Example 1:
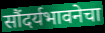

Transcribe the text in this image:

सौंदर्यभावनेचा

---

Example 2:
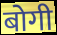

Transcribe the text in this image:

बोगी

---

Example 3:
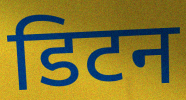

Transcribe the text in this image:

डिटन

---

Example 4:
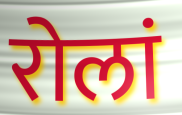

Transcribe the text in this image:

रोलां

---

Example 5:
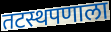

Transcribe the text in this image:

तटस्थपणाला